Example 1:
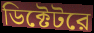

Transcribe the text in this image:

ডিক্টেটরে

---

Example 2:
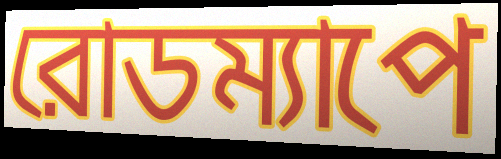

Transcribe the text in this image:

রোডম্যাপে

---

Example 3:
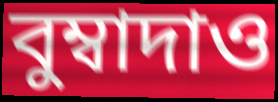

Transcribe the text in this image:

বুম্বাদাও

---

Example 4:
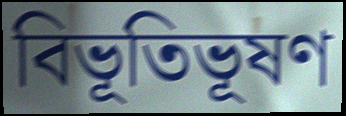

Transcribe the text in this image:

বিভূতিভূষণ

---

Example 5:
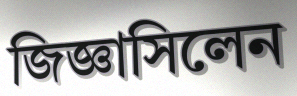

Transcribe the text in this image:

জিজ্ঞাসিলেন